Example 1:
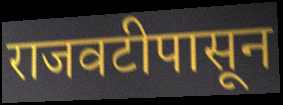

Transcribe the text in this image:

राजवटीपासून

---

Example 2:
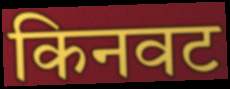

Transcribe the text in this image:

किनवट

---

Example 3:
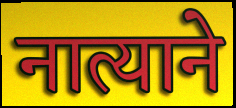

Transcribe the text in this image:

नात्याने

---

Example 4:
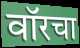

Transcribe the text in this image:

वॉरचा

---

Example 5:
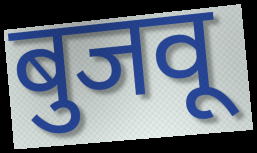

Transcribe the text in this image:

बुजवू